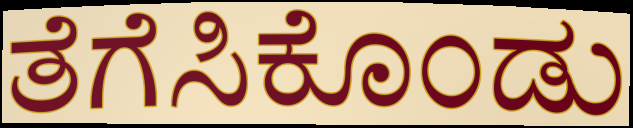
ತೆಗೆಸಿಕೊಂಡು